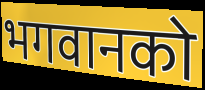
भगवानको